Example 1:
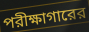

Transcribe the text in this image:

পরীক্ষাগারের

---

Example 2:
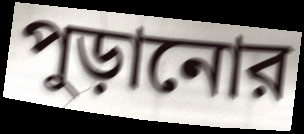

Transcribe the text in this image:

পুড়ানোর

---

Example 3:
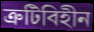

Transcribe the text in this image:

ত্রুটিবিহীন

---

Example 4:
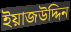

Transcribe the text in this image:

ইয়াজউদ্দিন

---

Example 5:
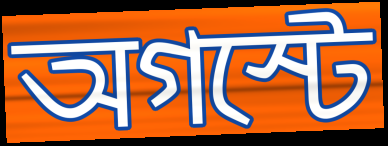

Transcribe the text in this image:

অগস্টে